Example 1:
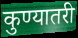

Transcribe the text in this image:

कुण्यातरी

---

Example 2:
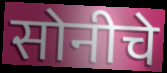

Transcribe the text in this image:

सोनीचे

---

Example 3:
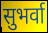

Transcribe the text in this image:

सुभर्वा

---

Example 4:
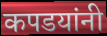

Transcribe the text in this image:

कपडयांनी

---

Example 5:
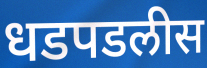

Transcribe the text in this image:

धडपडलीस